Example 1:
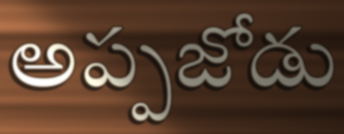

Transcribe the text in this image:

అప్పజోడు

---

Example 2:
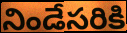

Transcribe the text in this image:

నిండేసరికి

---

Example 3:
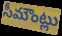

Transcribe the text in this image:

సీమౌంట్లు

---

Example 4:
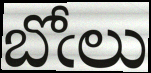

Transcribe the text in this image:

బోఁలు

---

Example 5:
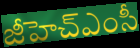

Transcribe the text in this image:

జీహెచ్ఎంసీ